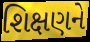
શિક્ષણને